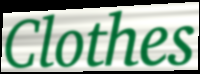
Clothes